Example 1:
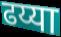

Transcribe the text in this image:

ढय्या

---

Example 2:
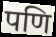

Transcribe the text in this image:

पणि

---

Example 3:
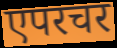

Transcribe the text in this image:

एपरचर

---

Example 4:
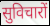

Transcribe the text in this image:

सुविचारों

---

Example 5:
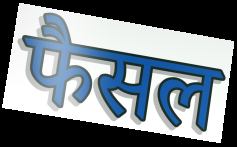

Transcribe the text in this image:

फैसल